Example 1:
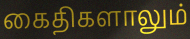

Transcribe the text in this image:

கைதிகளாலும்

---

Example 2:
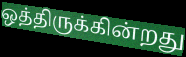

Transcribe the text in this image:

ஒத்திருக்கின்றது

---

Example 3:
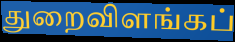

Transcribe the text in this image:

துறைவிளங்கப்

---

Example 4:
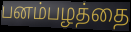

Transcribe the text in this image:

பனம்பழத்தை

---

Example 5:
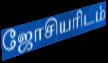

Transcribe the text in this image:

ஜோசியரிடம்